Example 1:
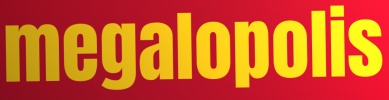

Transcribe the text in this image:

megalopolis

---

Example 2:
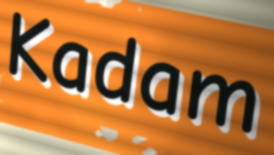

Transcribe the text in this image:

Kadam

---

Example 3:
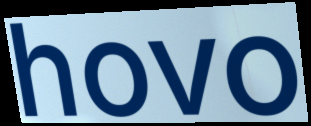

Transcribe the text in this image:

hovo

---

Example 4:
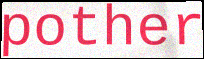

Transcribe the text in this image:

pother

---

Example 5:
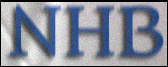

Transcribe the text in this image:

NHB